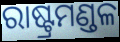
ରାଷ୍ଟ୍ରମଣ୍ଡଳ